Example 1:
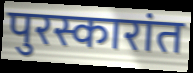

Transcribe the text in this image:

पुरस्कारांत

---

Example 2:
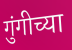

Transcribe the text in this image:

गुंगीच्या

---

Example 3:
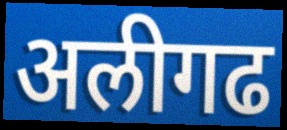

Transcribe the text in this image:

अलीगढ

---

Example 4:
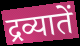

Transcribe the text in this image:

द्रव्यातें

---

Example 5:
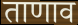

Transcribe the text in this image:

ताणाव